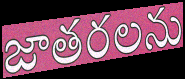
జాతరలను